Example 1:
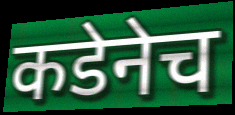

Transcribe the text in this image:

कडेनेच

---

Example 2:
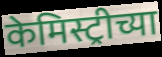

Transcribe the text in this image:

केमिस्ट्रीच्या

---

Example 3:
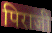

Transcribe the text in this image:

पिराजी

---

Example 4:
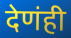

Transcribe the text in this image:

देणंही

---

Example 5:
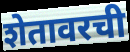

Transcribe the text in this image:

शेतावरची